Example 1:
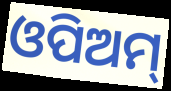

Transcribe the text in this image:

ଓପିଅମ୍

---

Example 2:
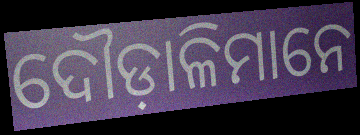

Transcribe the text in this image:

ଦୌଡ଼ାଳିମାନେ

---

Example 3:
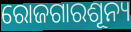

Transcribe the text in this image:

ରୋଜଗାରଶୂନ୍ୟ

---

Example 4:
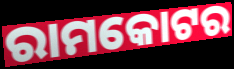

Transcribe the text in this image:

ରାମକୋଟର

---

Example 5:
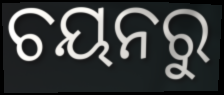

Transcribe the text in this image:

ଚୟନରୁ